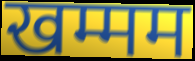
खम्मम